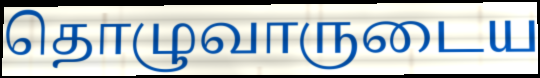
தொழுவாருடைய